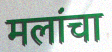
मलांचा